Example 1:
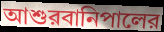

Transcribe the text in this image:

আশুরবানিপালের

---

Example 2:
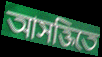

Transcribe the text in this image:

আসক্তিতে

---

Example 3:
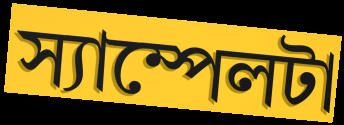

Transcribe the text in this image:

স্যাম্পেলটা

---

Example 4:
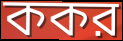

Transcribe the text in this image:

ককর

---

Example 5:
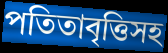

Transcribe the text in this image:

পতিতাবৃত্তিসহ